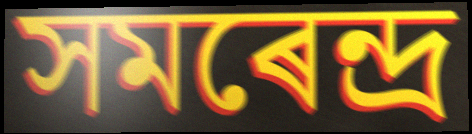
সমৰেন্দ্ৰ